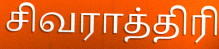
சிவராத்திரி